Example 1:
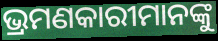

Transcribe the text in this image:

ଭ୍ରମଣକାରୀମାନଙ୍କୁ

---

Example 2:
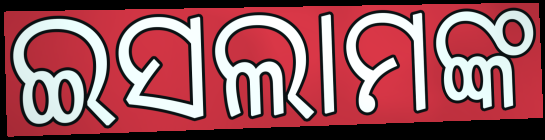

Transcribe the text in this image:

ଇସଲାମଙ୍କ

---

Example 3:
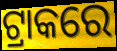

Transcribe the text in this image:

ଟ୍ରାକରେ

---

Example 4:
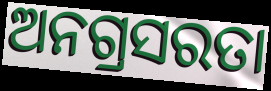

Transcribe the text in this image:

ଅନଗ୍ରସରତା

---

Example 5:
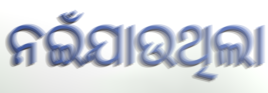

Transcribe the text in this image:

ନଇଁଯାଉଥିଲା